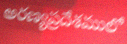
అరణ్యప్రదేశములో